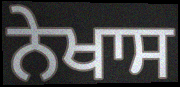
ਨੇਖਾਸ